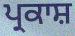
ਪ੍ਰਕਾਸ਼